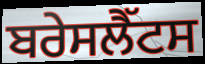
ਬਰੇਸਲੈੱਟਸ